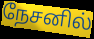
நேசனில்